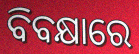
ବିବକ୍ଷାରେ